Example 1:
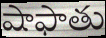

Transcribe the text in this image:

షాఫాతు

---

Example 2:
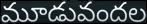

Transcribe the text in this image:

మూడువందల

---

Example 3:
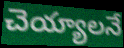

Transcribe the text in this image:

చెయ్యాలనే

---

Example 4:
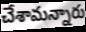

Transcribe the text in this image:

చేశామన్నారు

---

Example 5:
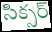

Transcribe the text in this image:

సిక్సర్